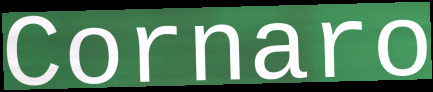
Cornaro